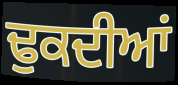
ਢੁਕਦੀਆਂ